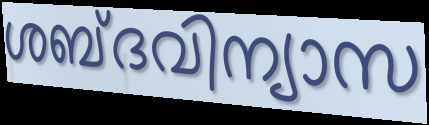
ശബ്ദവിന്യാസ